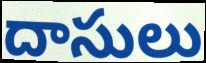
దాసులు